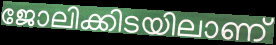
ജോലിക്കിടയിലാണ്